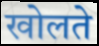
खोलते